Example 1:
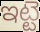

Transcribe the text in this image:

ఇట్టె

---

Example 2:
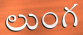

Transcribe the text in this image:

లుంగ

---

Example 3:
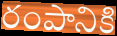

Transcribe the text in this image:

రంపానికి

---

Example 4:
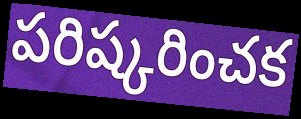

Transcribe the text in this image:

పరిష్కరించక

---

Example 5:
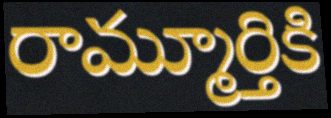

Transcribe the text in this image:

రామ్మూర్తికి